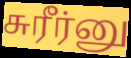
சுரீர்னு